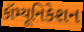
કૉમ્યૂનિકેશન